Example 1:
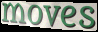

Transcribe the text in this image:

moves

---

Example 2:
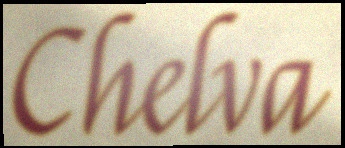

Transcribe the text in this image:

Chelva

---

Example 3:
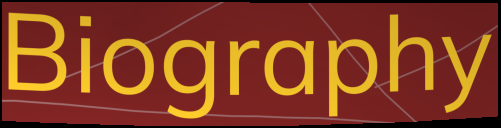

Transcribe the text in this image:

Biography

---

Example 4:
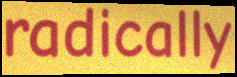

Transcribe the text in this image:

radically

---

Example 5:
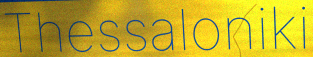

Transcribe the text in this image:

Thessaloniki